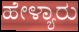
ಹೇಳ್ಯಾರು